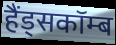
हैंड्सकॉम्ब